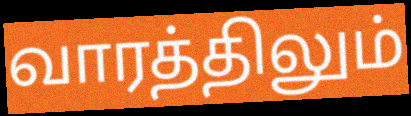
வாரத்திலும்